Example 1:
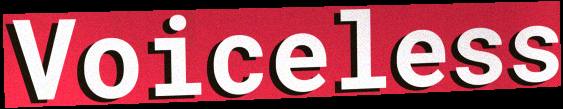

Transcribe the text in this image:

Voiceless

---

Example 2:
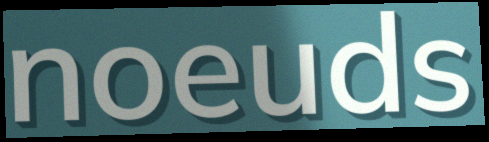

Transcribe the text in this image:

noeuds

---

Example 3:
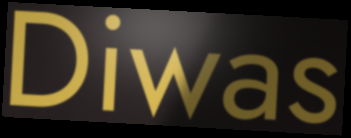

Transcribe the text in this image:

Diwas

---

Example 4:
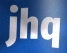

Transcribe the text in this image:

jhq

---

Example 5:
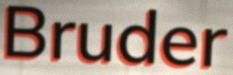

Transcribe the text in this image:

Bruder